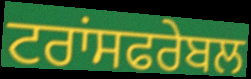
ਟਰਾਂਸਫਰੇਬਲ